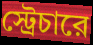
স্ট্রেচারে